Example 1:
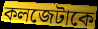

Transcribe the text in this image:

কলজেটাকে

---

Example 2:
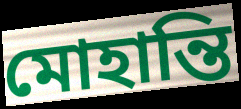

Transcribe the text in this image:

মোহান্তি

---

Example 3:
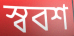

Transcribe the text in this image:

স্ববশ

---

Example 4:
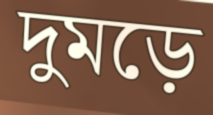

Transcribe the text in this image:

দুমড়ে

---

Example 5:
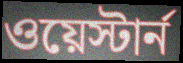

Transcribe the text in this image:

ওয়েস্টার্ন